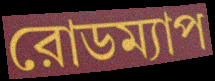
রোডম্যাপ